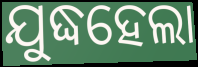
ଯୁଦ୍ଧହେଲା